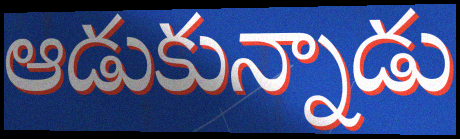
ఆడుకున్నాడు